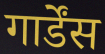
गार्डेंस